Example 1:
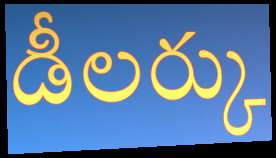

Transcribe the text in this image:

డీలర్కు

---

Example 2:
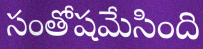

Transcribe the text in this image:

సంతోషమేసింది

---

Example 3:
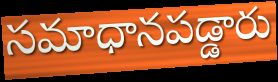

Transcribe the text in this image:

సమాధానపడ్డారు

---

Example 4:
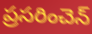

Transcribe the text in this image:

ప్రసరించెన్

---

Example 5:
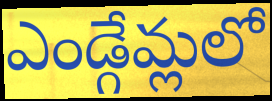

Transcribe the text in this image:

ఎండ్గేమ్లలో